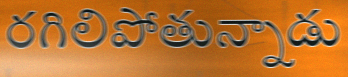
రగిలిపోతున్నాడు